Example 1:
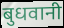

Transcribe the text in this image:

बुधवानी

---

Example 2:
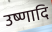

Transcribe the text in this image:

उष्णादि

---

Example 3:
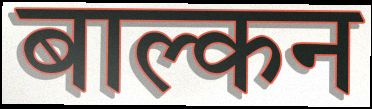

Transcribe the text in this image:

बाल्कन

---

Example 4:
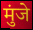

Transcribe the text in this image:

मुंजे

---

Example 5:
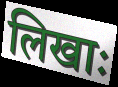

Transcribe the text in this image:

लिखाः